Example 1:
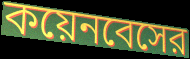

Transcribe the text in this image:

কয়েনবেসের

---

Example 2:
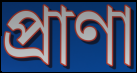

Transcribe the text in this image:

প্রাণা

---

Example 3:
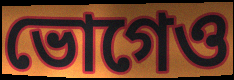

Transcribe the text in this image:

ভোগেও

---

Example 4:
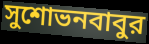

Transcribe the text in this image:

সুশোভনবাবুর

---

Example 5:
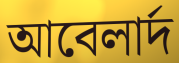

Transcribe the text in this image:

আবেলার্দ